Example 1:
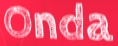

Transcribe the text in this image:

Onda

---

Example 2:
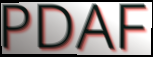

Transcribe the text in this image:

PDAF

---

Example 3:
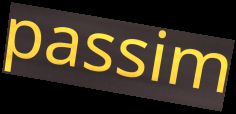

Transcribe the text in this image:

passim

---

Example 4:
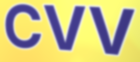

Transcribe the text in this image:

CVV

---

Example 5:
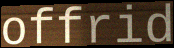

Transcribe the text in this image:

offrid